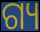
ଗ୍ୟ